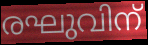
രഘുവിന്